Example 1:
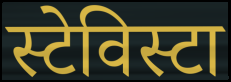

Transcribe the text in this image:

स्टेविस्टा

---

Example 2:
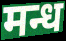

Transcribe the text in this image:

मन्ध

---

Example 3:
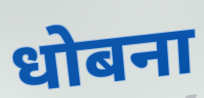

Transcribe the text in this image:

धोबना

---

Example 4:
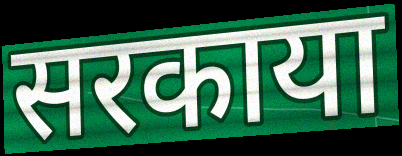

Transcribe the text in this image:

सरकाया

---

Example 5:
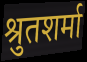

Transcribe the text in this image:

श्रुतशर्मा